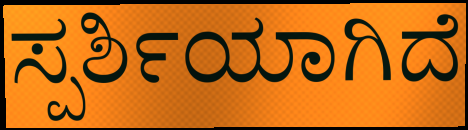
ಸ್ಪರ್ಶಿಯಾಗಿದೆ